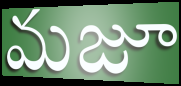
మజూ